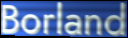
Borland